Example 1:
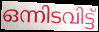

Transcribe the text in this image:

ഒന്നിടവിട്ട്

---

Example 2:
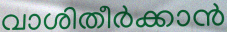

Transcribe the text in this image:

വാശിതീർക്കാൻ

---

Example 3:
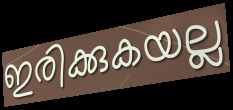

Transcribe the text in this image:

ഇരിക്കുകയല്ല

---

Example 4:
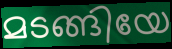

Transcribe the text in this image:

മടങ്ങിയേ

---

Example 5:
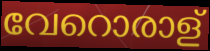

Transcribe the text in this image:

വേറൊരാള്